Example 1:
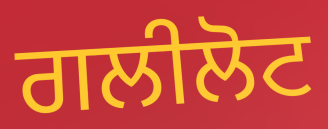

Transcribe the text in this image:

ਗਲੀਲੋਟ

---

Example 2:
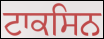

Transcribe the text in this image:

ਟਾਕਸਿਨ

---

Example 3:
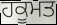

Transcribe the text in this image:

ਹਕੂਮਤ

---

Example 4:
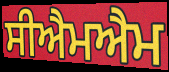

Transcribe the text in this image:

ਸੀਐਮਐਮ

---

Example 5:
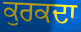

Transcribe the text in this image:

ਕੁਰਕਦਾ